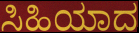
ಸಿಹಿಯಾದ